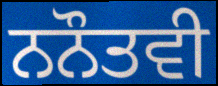
ਨਨੌਤਵੀ